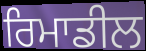
ਰਿਮਾਡੀਲ